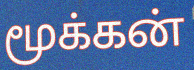
மூக்கன்